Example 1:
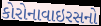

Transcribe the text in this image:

કોરોનાવાઇરસનો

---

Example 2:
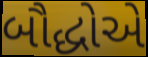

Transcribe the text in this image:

બૌદ્ધોએ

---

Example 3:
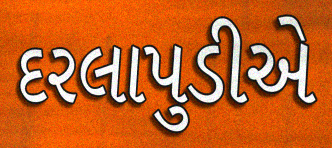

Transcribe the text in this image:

દરલાપુડીએ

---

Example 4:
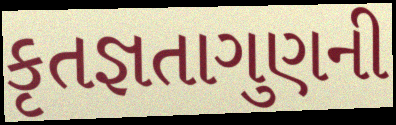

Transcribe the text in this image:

કૃતજ્ઞતાગુણની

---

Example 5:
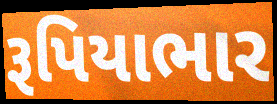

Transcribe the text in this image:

રૂપિયાભાર